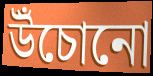
উঁচোনো